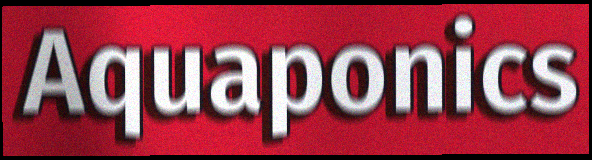
Aquaponics